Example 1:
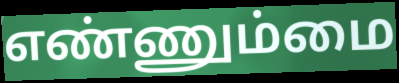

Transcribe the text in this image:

எண்ணும்மை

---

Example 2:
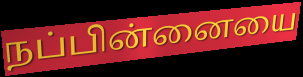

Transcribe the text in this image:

நப்பின்னையை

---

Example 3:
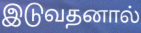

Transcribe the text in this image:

இடுவதனால்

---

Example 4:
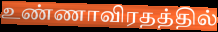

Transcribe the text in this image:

உண்ணாவிரதத்தில்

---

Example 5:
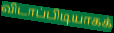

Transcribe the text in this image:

விடாப்பிடியாகக்